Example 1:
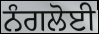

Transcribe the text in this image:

ਨੰਗਲੋਈ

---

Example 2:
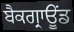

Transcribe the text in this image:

ਬੈਕਗ੍ਰਾਊਂਡ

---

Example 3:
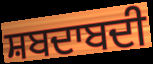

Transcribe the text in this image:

ਸ਼ਬਦਾਬਦੀ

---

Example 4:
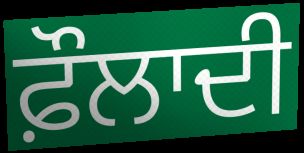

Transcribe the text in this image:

ਫ਼ੌਲਾਦੀ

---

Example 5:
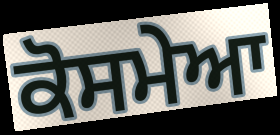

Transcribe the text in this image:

ਕੋਸਮੇਆ